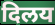
दिलय